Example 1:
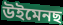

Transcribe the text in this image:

উইমেনছ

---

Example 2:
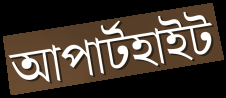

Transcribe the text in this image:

আপাৰ্টহাইট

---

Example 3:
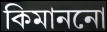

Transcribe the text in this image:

কিমাননো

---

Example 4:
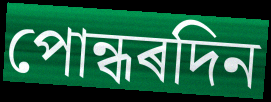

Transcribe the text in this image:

পোন্ধৰদিন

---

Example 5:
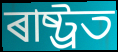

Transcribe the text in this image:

ৰাষ্ট্ৰত